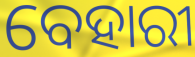
ବେହାରୀ